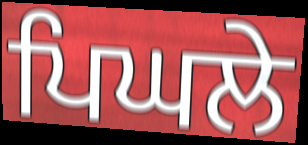
ਪਿਘਲੇ